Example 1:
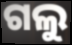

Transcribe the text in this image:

ଗଲୁ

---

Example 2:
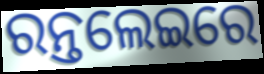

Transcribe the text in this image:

ରନ୍ତଲେଇରେ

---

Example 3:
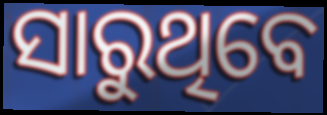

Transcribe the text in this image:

ସାରୁଥିବେ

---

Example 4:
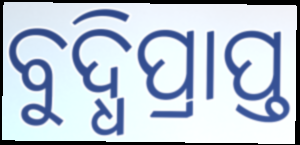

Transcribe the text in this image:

ବୁଦ୍ଧିପ୍ରାପ୍ତ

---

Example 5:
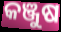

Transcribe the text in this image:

କଞ୍ଜୁଷ